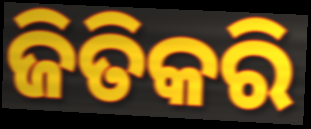
ଜିତିକରି